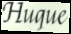
Huque